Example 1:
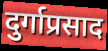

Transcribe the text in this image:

दुर्गाप्रसाद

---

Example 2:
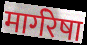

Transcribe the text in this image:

मार्गरेषा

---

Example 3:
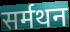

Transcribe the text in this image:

सर्मथन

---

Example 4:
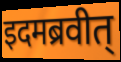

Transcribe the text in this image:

इदमब्रवीत्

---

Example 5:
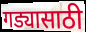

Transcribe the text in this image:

गड्यासाठी